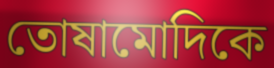
তোষামোদিকে